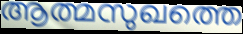
ആത്മസുഖത്തെ